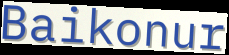
Baikonur